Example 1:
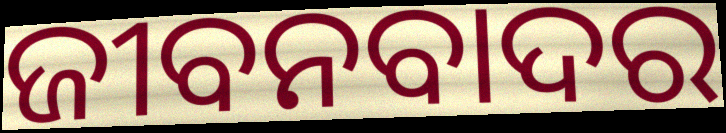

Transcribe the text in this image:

ଜୀବନବାଦର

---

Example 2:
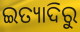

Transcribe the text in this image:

ଇତ୍ୟାଦିରୁ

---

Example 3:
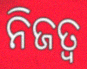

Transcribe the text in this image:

ନିଜତ୍ବ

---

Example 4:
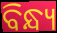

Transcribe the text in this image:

ବିନ୍ଧ୍ୟ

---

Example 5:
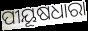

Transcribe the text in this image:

ପୀୟୂଷଧାରା